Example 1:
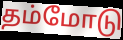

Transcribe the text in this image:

தம்மோடு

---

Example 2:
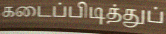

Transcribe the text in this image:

கடைப்பிடித்துப்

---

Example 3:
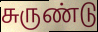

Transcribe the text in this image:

சுருண்டு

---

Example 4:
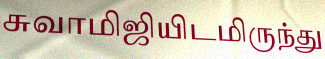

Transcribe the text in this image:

சுவாமிஜியிடமிருந்து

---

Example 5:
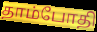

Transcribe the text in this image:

தாம்போதி